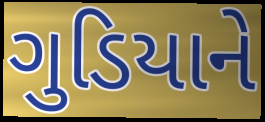
ગુડિયાને